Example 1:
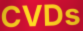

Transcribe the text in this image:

CVDs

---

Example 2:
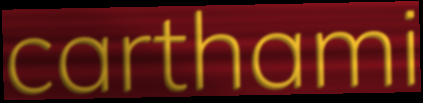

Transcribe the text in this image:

carthami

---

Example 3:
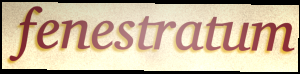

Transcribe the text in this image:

fenestratum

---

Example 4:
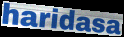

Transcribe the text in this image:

haridasa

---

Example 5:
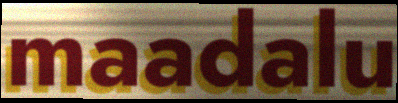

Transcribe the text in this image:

maadalu